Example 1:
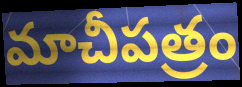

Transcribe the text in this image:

మాచీపత్రం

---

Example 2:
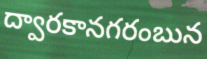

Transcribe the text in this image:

ద్వారకానగరంబున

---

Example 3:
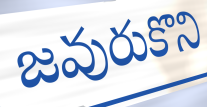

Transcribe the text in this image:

జవురుకొని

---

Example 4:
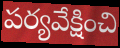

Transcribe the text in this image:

పర్యవేక్షించి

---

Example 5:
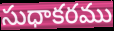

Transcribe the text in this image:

సుధాకరము